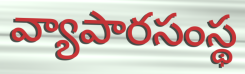
వ్యాపారసంస్థ